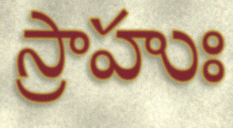
స్రాహుః